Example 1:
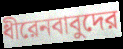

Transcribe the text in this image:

ধীরেনবাবুদের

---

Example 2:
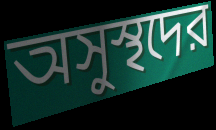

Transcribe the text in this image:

অসুস্থদের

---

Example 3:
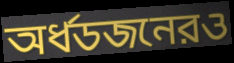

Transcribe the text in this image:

অর্ধডজনেরও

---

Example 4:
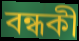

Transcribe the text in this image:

বন্ধকী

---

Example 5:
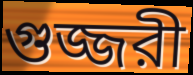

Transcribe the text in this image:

গুজ্জরী